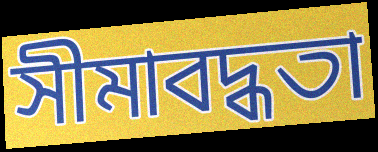
সীমাবদ্ধতা